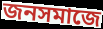
জনসমাজে